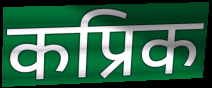
कप्रिक